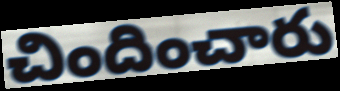
చిందించారు